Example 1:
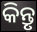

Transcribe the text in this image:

କିନ୍ତୃ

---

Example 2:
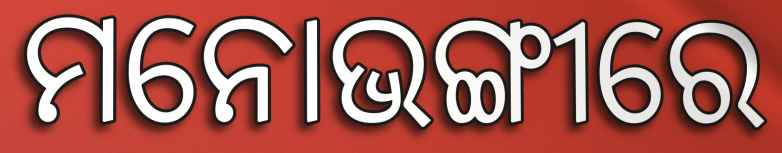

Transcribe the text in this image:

ମନୋଭଙ୍ଗୀରେ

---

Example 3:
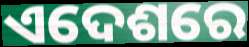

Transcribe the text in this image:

ଏଦେଶରେ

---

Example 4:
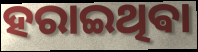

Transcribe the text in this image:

ହରାଇଥିଵା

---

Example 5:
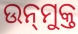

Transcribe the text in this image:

ଉନ୍‍ମୁକ୍ତ